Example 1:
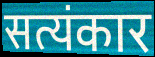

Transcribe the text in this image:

सत्यंकार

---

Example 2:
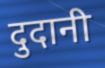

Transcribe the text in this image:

दुदानी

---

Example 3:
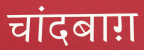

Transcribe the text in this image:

चांदबाग़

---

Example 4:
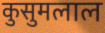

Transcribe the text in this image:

कुसुमलाल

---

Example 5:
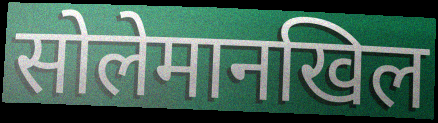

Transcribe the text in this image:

सोलेमानखिल